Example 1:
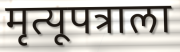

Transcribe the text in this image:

मृत्यूपत्राला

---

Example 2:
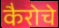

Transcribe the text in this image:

कैरोचे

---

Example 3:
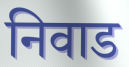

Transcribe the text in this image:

निवाड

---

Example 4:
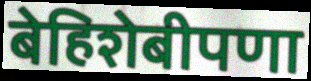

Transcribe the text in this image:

बेहिशेबीपणा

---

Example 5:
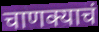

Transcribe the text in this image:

चाणक्याचं